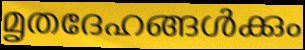
മൃതദേഹങ്ങൾക്കും